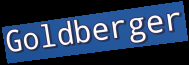
Goldberger